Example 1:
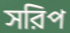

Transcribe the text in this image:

সরিপ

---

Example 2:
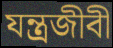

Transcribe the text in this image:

যন্ত্রজীবী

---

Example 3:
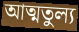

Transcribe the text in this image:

আত্মতুল্য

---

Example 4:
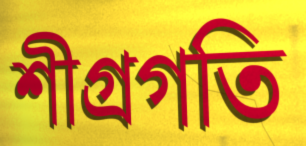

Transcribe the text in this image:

শীগ্রগতি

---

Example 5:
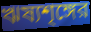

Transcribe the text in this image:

ঋষ্যশৃঙ্গের